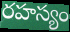
రహస్యం